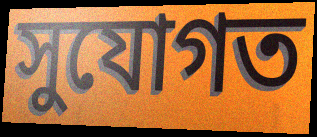
সুযোগত